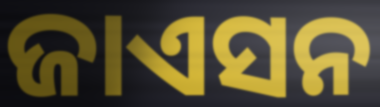
ଜାଏସନ